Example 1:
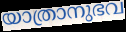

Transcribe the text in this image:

യാത്രാനുഭവ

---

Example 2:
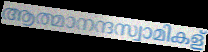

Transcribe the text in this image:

ആത്മാനന്ദസ്വാമികള്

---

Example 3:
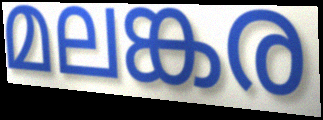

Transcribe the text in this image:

മലങ്കര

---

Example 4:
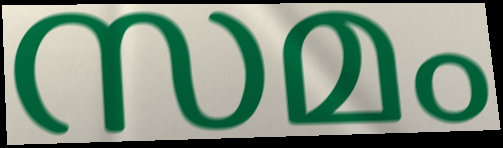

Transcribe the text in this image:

സമം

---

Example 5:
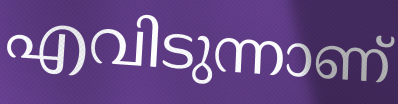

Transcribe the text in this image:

എവിടുന്നാണ്